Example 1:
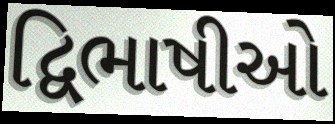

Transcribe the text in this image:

દ્વિભાષીઓ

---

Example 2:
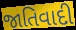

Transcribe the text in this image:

જાતિવાદી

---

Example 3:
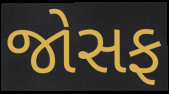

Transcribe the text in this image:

જોસફ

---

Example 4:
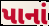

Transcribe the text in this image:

પાનાં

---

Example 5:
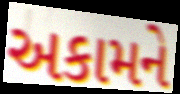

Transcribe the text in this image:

અકામને